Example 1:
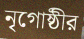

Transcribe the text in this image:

নৃগোষ্ঠীর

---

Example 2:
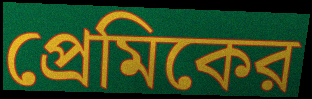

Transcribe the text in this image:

প্রেমিকের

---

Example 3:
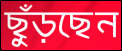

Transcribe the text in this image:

ছুঁড়ছেন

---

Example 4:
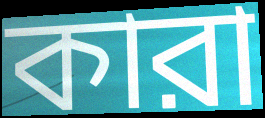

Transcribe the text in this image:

কারা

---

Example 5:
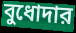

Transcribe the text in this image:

বুধোদার